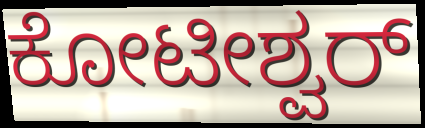
ಕೋಟೀಶ್ವರ್